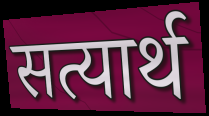
सत्यार्थ